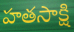
హతసాక్షి